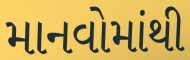
માનવોમાંથી